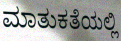
ಮಾತುಕತೆಯಲ್ಲಿ